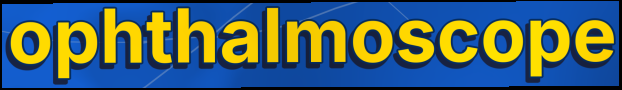
ophthalmoscope